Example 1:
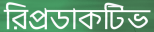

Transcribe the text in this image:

রিপ্রডাকটিভ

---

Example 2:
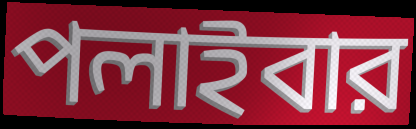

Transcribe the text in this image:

পলাইবার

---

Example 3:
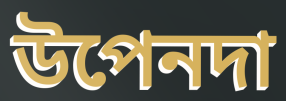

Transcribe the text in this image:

উপেনদা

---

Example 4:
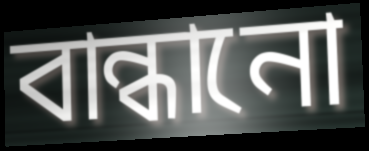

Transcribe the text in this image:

বান্ধানো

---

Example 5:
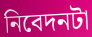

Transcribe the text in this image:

নিবেদনটা